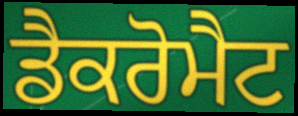
ਡੈਕਰੋਮੈਟ